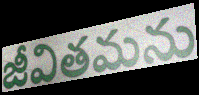
జీవితమను